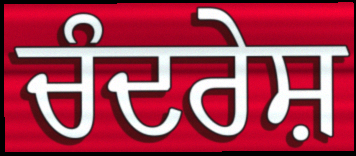
ਚੰਦਰੇਸ਼